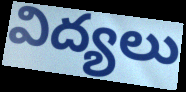
విద్యలు